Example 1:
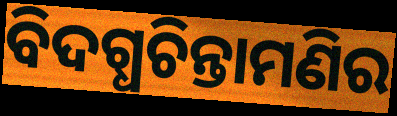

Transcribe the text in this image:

ବିଦଗ୍ଧଚିନ୍ତାମଣିର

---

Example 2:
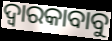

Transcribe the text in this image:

ଦ୍ୱାରକାବାବୁ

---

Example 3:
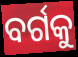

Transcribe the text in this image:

ବର୍ଗକୁ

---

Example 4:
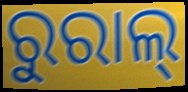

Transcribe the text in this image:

ରୁରାଲ୍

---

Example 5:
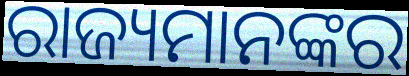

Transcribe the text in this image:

ରାଜ୍ୟମାନଙ୍କର